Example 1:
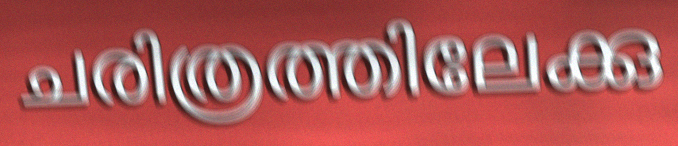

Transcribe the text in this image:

ചരിത്രത്തിലേക്കു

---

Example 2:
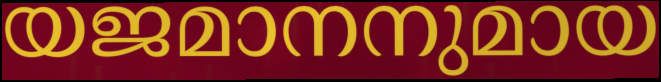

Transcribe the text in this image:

യജമാനനുമായ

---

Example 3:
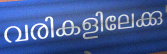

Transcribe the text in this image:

വരികളിലേക്കു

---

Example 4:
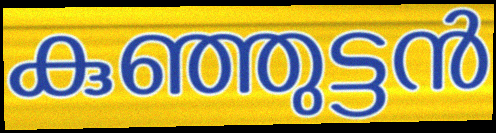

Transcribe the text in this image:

കുഞ്ഞുട്ടൻ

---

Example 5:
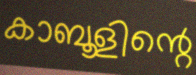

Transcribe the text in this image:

കാബൂളിന്റെ